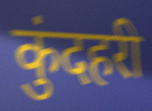
कुंदहरी